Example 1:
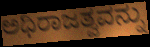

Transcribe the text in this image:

ಅಧಿರಾಜತ್ವವನ್ನು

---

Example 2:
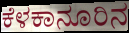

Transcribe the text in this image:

ಕೆಳಕಾನೂರಿನ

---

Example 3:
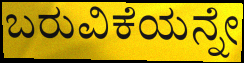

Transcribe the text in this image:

ಬರುವಿಕೆಯನ್ನೇ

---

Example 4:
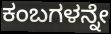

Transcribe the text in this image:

ಕಂಬಗಳನ್ನೇ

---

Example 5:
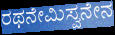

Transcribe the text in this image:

ರಥನೇಮಿಸ್ವನೇನ